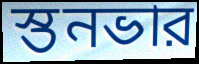
স্তনভার